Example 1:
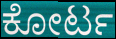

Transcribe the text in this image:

ಕೋರ್ಟ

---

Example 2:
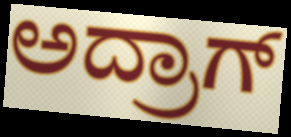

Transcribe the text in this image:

ಅದ್ರಾಗ್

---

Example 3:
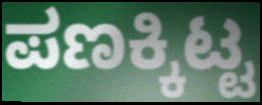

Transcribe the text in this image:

ಪಣಕ್ಕಿಟ್ಟ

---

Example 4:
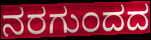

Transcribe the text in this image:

ನರಗುಂದದ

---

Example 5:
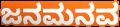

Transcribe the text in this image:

ಜನಮನವ